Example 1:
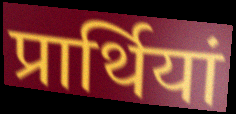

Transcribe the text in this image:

प्रार्थियां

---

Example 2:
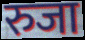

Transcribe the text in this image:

रुजा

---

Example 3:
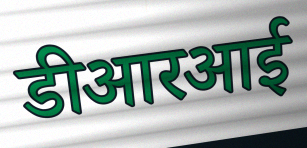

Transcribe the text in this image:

डीआरआई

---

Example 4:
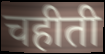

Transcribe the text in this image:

चहीती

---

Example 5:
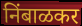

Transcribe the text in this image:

निंबाळकर